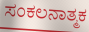
ಸಂಕಲನಾತ್ಮಕ